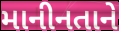
માનીનતાને